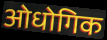
ओधोगिक